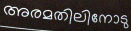
അരമതിലിനോടു